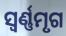
ସ୍ଵର୍ଣ୍ଣମୃଗ